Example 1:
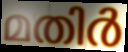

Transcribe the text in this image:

മതിർ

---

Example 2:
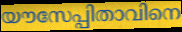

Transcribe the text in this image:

യൗസേപ്പിതാവിനെ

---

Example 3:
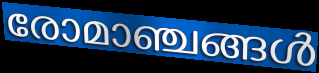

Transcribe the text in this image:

രോമാഞ്ചങ്ങൾ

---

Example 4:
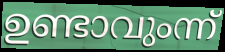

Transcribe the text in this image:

ഉണ്ടാവുംന്ന്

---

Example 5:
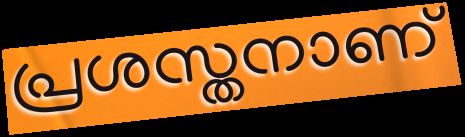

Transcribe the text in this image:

പ്രശസ്തനാണ്